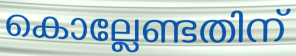
കൊല്ലേണ്ടതിന്